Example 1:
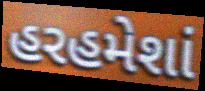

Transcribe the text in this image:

હરહમેશાં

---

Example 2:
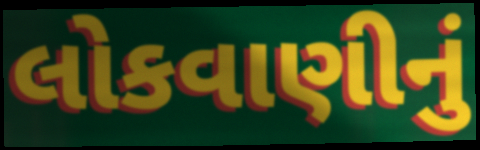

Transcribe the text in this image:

લોકવાણીનું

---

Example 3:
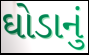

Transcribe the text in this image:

ઘોડાનું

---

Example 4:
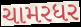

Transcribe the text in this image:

ચામરધર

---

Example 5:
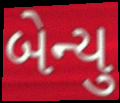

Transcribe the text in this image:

બેન્યુ